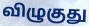
விழுகுது